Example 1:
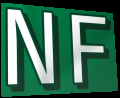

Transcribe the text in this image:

NF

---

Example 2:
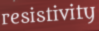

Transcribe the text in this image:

resistivity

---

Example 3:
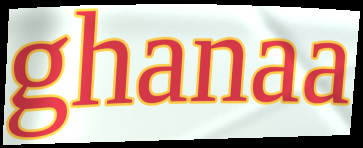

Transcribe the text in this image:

ghanaa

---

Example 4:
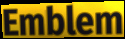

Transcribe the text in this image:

Emblem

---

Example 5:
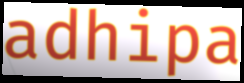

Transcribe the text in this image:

adhipa